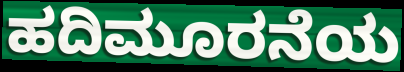
ಹದಿಮೂರನೆಯ